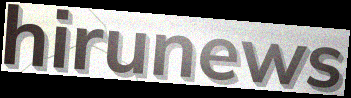
hirunews